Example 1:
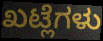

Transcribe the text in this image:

ಖಟ್ಲೆಗಳು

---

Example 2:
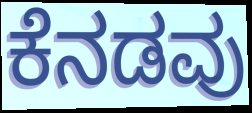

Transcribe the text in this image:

ಕೆನಡವು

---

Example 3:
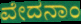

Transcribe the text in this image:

ವೇದನಾಂ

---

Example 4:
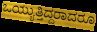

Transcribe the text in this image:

ಒಯ್ಯುತ್ತಿದ್ದರಾದರೂ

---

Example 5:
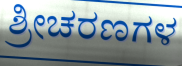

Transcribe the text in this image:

ಶ್ರೀಚರಣಗಳ